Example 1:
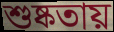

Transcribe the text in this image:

শুষ্কতায়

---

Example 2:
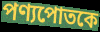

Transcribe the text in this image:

পণ্যপোতকে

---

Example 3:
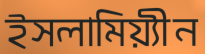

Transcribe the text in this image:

ইসলামিয়্যীন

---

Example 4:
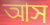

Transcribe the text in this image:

আস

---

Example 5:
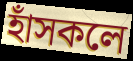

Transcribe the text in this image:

হাঁসকলে